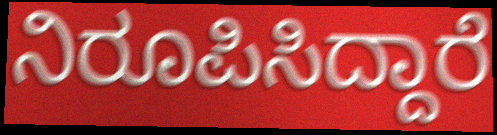
ನಿರೂಪಿಸಿದ್ದಾರೆ